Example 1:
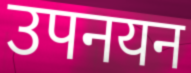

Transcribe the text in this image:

उपनयन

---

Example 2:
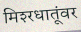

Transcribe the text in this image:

मिश्रधातूंवर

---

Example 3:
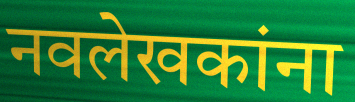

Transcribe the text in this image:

नवलेखकांना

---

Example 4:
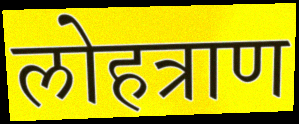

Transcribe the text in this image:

लोहत्राण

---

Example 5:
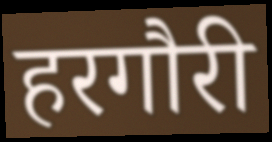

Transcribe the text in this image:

हरगौरी